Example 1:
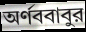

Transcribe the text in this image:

অর্ণববাবুর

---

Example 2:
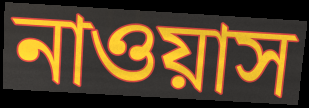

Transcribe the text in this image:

নাওয়াস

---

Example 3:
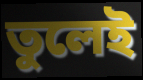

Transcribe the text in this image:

তুলেই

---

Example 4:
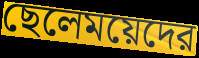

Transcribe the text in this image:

ছেলেময়েদের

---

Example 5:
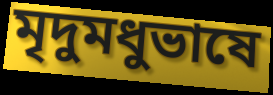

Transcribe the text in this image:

মৃদুমধুভাষে